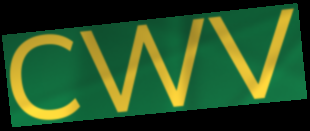
CWV